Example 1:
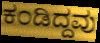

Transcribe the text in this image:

ಕಂಡಿದ್ದವು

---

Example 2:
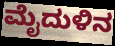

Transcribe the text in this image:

ಮೈದುಳಿನ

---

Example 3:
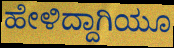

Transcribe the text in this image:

ಹೇಳಿದ್ದಾಗಿಯೂ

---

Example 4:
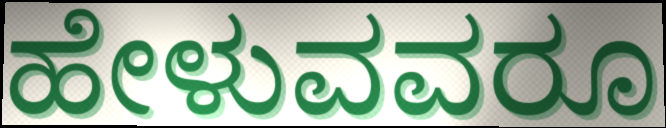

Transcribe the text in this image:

ಹೇಳುವವರೂ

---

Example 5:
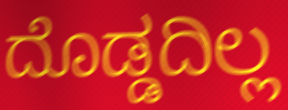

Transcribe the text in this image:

ದೊಡ್ಡದಿಲ್ಲ